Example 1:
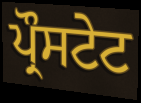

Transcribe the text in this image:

ਪ੍ਰੌਸਟੇਟ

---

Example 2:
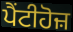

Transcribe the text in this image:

ਪੈਂਟੀਹੋਜ਼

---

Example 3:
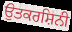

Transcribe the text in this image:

ਉਤਕਰਸ਼ਿਨੀ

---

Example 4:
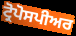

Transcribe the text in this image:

ਟ੍ਰੋਪੋਸਪੀਅਰ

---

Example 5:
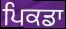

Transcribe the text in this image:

ਪਿਕਡਾ